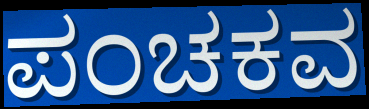
ಪಂಚಕವ